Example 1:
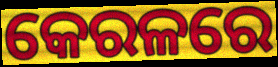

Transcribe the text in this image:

କେରଳରେ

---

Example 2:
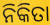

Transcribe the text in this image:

ନିକିତା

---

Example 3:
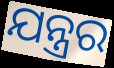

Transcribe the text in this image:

ଯନ୍ତ୍ରର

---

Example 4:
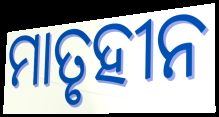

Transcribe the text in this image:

ମାତୃହୀନ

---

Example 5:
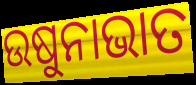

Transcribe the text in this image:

ଉଷୁନାଭାତ